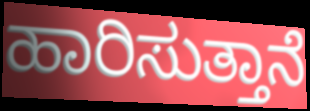
ಹಾರಿಸುತ್ತಾನೆ